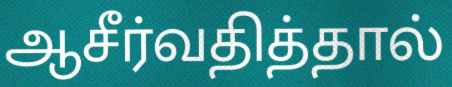
ஆசீர்வதித்தால்